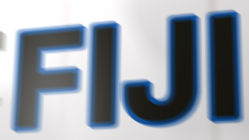
FIJI